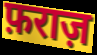
फ़राज़